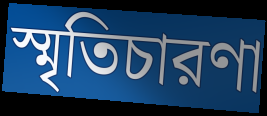
স্মৃতিচারণা